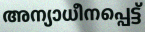
അന്യാധീനപ്പെട്ട്